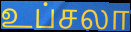
உப்சலா